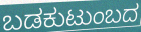
ಬಡಕುಟುಂಬದ